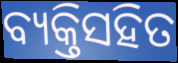
ବ୍ୟକ୍ତିସହିତ